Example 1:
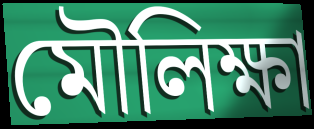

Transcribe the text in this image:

মৌলিক্ষা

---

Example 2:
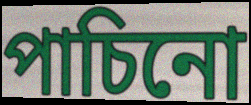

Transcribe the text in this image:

পাচিনো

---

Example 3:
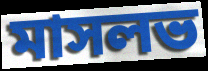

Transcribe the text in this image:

মাসলভ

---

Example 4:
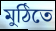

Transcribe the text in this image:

মুঠিতে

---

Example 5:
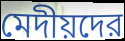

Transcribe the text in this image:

মেদীয়দের